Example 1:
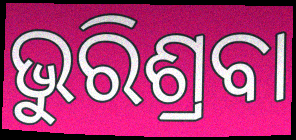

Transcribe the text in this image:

ଭୁରିଶ୍ରବା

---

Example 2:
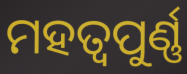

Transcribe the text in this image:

ମହତ୍ୱପୁର୍ଣ୍ଣ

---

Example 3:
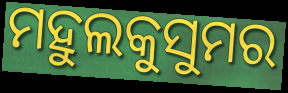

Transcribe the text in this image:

ମହୁଲକୁସୁମର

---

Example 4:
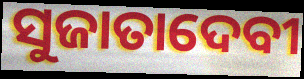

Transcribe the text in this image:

ସୁଜାତାଦେବୀ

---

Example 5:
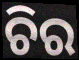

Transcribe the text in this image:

ଚିର